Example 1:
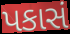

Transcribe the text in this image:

પકાસં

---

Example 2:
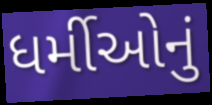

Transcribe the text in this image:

ધર્મીઓનું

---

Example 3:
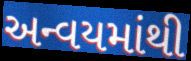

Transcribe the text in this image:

અન્વયમાંથી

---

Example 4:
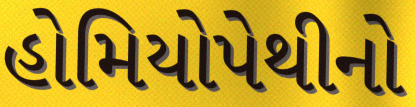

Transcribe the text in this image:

હોમિયોપેથીનો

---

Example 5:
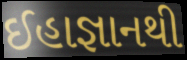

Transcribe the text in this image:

ઈહાજ્ઞાનથી